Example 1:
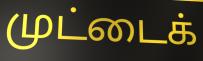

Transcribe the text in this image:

முட்டைக்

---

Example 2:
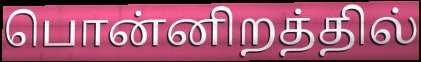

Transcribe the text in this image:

பொன்னிறத்தில்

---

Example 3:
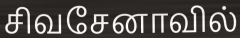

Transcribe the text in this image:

சிவசேனாவில்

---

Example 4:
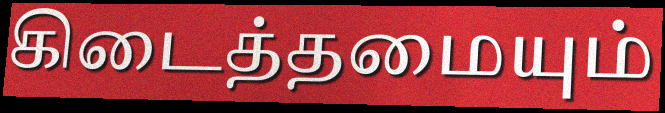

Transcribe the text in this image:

கிடைத்தமையும்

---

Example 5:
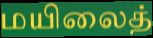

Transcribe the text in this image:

மயிலைத்